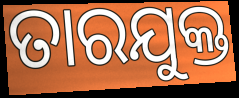
ତାରଯୁକ୍ତ